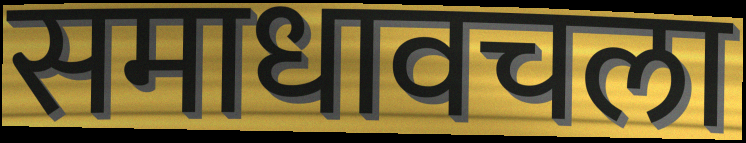
समाधावचला